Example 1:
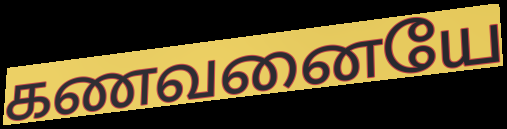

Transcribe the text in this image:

கணவனையே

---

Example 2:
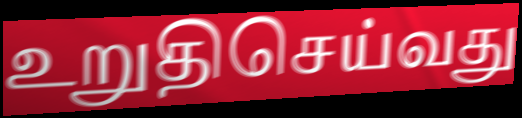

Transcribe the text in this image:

உறுதிசெய்வது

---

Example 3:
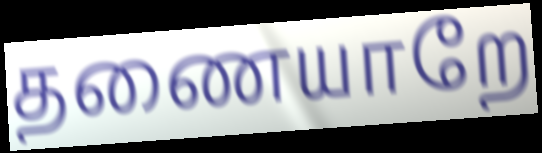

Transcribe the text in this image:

தணையாறே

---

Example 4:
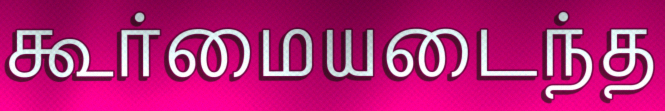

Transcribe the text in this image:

கூர்மையடைந்த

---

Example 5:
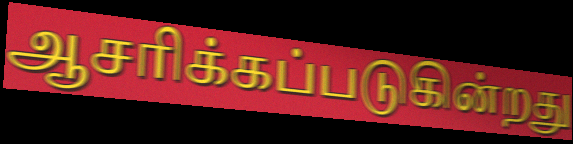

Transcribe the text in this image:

ஆசரிக்கப்படுகின்றது